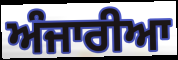
ਅੰਜਾਰੀਆ